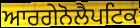
ਆਰਗੇਨੋਲੈਪਟਿਕ